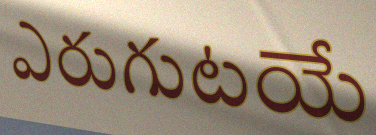
ఎరుగుటయే